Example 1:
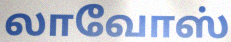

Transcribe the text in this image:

லாவோஸ்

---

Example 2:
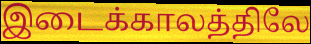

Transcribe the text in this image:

இடைக்காலத்திலே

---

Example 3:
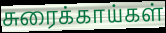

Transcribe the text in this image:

சுரைக்காய்கள்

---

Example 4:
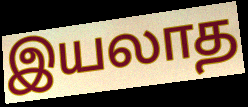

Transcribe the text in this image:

இயலாத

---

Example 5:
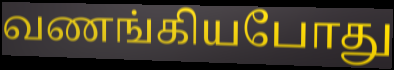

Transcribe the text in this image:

வணங்கியபோது